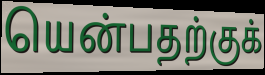
யென்பதற்குக்